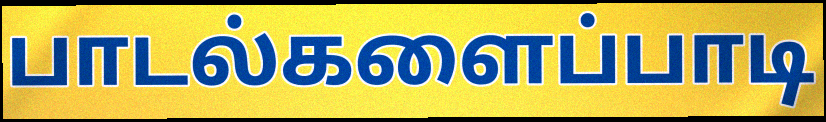
பாடல்களைப்பாடி